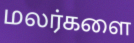
மலர்களை